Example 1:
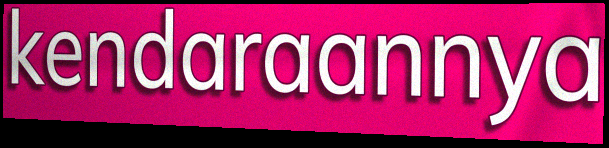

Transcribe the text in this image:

kendaraannya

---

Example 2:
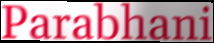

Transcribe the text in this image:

Parabhani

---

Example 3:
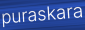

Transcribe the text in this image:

puraskara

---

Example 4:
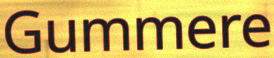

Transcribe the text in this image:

Gummere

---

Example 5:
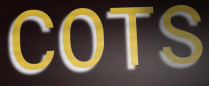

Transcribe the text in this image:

COTS